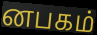
னபகம்